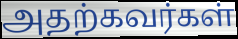
அதற்கவர்கள்